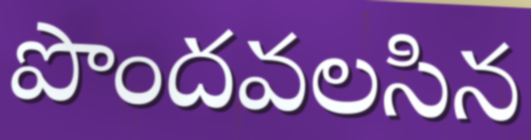
పొందవలసిన